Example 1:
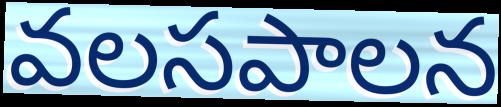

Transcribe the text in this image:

వలసపాలన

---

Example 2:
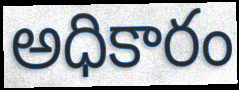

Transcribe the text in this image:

అధికారం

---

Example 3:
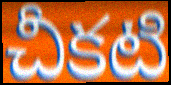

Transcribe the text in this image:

చీకటి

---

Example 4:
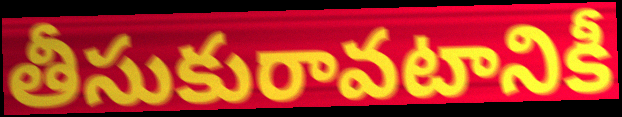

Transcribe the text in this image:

తీసుకురావటానికీ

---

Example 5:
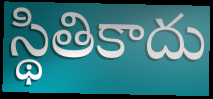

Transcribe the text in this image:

స్థితికాదు